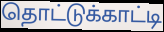
தொட்டுக்காட்டி